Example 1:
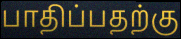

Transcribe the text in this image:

பாதிப்பதற்கு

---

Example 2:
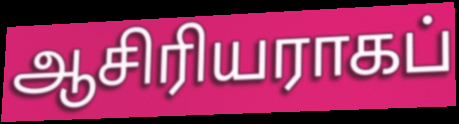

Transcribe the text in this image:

ஆசிரியராகப்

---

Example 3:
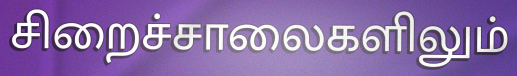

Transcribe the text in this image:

சிறைச்சாலைகளிலும்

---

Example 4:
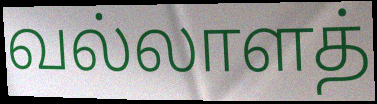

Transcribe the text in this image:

வல்லாளத்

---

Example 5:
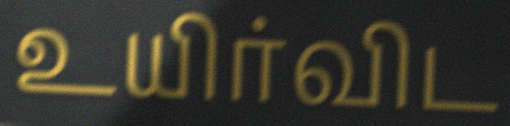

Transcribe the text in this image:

உயிர்விட